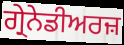
ਗ੍ਰੇਨੇਡੀਅਰਜ਼